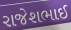
રાજેશભાઈ